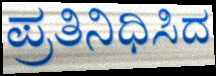
ಪ್ರತಿನಿಧಿಸಿದ